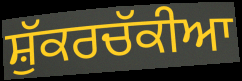
ਸ਼ੁੱਕਰਚੱਕੀਆ